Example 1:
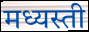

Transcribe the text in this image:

मध्यस्ती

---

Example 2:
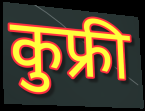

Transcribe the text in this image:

कुफ्री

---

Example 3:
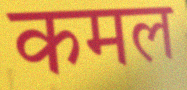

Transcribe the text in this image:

कमल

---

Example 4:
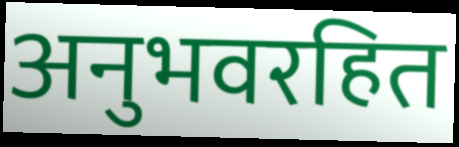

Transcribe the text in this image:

अनुभवरहित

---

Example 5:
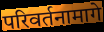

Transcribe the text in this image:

परिवर्तनामागे